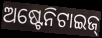
ଅଷ୍ଟେନିଟାଇଜ୍